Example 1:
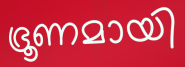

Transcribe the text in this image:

ഭ്രൂണമായി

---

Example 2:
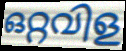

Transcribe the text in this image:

ഒറ്റവിള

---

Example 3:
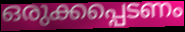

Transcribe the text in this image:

ഒരുക്കപ്പെടണം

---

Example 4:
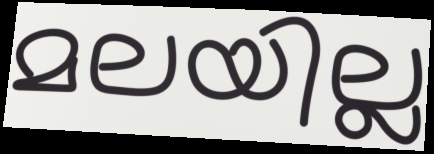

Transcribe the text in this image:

മലയില്ല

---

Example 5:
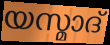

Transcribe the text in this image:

യസ്മാദ്